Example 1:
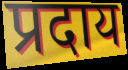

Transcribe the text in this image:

प्रदाय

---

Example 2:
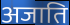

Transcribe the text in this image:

अजाति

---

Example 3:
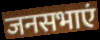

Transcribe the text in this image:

जनसभाएं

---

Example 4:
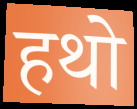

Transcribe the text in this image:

हथो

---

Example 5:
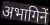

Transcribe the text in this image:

अभागिनें